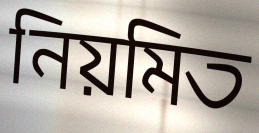
নিয়মিত